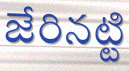
జేరినట్టి